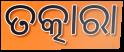
ତତ୍କାରା